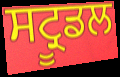
ਸਟ੍ਰੂਡਲ